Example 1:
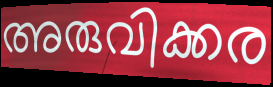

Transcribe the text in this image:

അരുവിക്കര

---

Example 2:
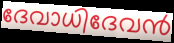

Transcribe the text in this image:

ദേവാധിദേവൻ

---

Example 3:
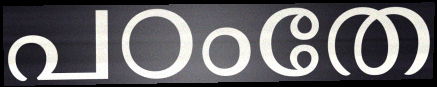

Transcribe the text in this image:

പഠംതേ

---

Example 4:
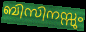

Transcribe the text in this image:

ബിസിനസ്സും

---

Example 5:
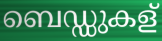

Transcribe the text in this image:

ബെഡ്ഡുകള്